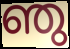
ഞു